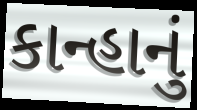
કાન્હાનું